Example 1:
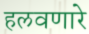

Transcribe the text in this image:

हलवणारे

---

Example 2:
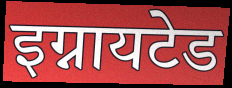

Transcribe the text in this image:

इग्नायटेड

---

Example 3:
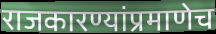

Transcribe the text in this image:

राजकारण्यांप्रमाणेच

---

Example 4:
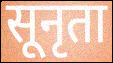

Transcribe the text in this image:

सूनृता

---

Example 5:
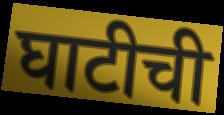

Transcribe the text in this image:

घाटीची